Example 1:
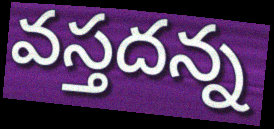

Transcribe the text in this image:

వస్తదన్న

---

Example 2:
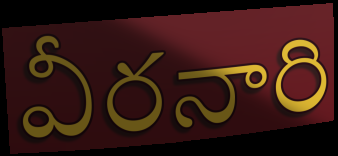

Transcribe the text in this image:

వీరనారి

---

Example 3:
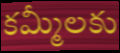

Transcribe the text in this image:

కమ్మీలకు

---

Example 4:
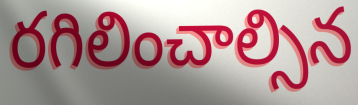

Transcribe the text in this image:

రగిలించాల్సిన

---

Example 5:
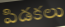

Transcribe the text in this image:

పిడకలు